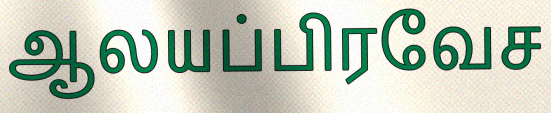
ஆலயப்பிரவேச